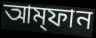
আম্‌ফান